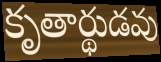
కృతార్థుడవు